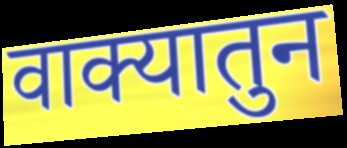
वाक्यातुन